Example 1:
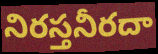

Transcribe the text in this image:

నిరస్తనీరదా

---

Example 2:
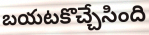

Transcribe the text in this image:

బయటకొచ్చేసింది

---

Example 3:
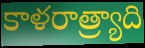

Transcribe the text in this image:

కాళరాత్ర్యాది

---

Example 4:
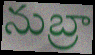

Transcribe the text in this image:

నుబ్రా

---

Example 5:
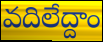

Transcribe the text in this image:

వదిలేద్దాం